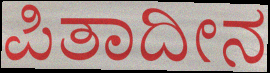
ಪಿತಾದೀನ